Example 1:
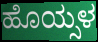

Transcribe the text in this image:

ಹೊಯ್ಸಳ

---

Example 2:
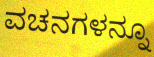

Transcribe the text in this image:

ವಚನಗಳನ್ನೂ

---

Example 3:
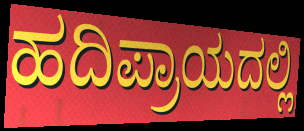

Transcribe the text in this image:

ಹದಿಪ್ರಾಯದಲ್ಲಿ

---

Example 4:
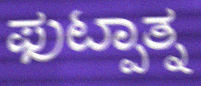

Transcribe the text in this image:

ಫುಟ್ಪಾತ್ನ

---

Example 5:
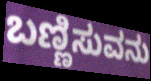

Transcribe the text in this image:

ಬಣ್ಣಿಸುವನು